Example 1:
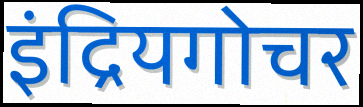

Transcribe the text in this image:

इंद्रियगोचर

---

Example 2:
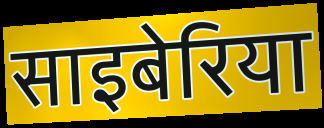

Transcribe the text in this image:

साइबेरिया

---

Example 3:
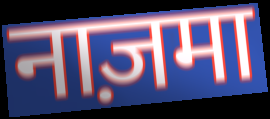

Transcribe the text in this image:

नाज़मा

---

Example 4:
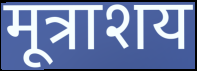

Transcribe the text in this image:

मूत्राशय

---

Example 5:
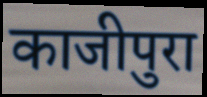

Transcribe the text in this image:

काजीपुरा